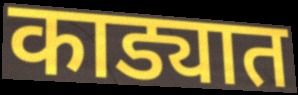
काड्यात